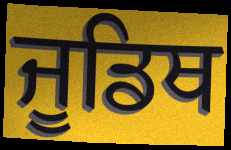
ਜੂਡਿਥ